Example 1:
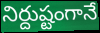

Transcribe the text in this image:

నిర్దుష్టంగానే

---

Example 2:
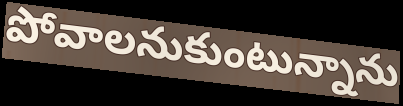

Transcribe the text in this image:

పోవాలనుకుంటున్నాను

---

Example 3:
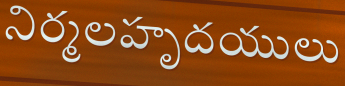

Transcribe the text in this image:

నిర్మలహృదయులు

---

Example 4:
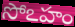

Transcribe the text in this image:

సోఽహం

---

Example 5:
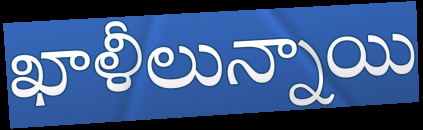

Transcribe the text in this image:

ఖాళీలున్నాయి